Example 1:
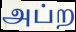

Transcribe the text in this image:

அப்ற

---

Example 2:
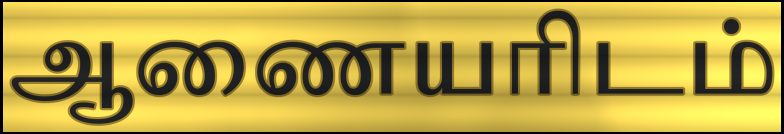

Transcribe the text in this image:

ஆணையரிடம்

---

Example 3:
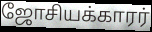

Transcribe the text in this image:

ஜோசியக்காரர்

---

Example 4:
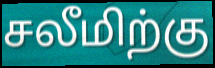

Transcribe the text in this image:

சலீமிற்கு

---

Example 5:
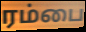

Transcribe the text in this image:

ரம்பை